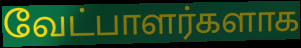
வேட்பாளர்களாக